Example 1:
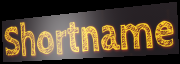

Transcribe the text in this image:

Shortname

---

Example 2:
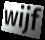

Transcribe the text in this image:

wijf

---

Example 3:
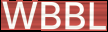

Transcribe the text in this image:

WBBL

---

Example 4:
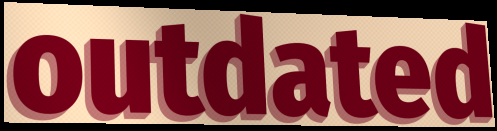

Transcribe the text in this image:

outdated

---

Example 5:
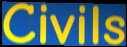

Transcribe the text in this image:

Civils